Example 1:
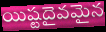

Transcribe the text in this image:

యిష్టదైవమైన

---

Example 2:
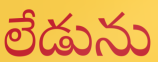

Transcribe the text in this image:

లేడును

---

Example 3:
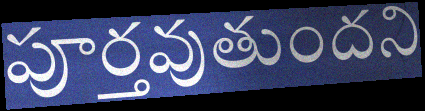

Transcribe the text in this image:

పూర్తవుతుందని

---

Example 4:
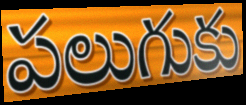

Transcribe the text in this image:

పలుగుకు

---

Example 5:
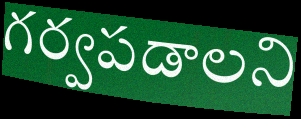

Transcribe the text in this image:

గర్వపడాలని